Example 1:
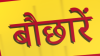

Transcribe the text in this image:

बौछारें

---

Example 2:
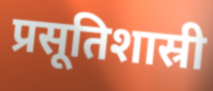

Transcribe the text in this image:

प्रसूतिशास्री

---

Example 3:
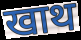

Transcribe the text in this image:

खाथ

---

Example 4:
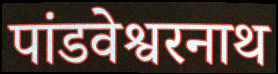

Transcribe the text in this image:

पांडवेश्वरनाथ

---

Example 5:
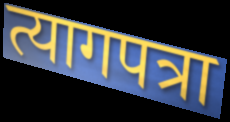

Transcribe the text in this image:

त्यागपत्रा